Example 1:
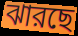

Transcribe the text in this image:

ঝারছে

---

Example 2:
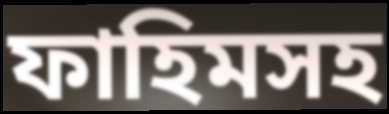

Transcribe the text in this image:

ফাহিমসহ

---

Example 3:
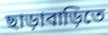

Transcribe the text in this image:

ছাড়াবাড়িতে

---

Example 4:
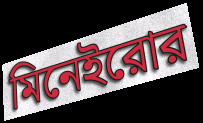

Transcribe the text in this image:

মিনেইরোর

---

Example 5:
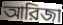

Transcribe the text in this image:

আরিজা